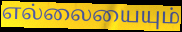
எல்லையையும்